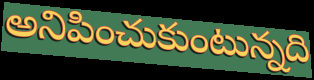
అనిపించుకుంటున్నది